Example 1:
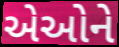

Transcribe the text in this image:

એઓને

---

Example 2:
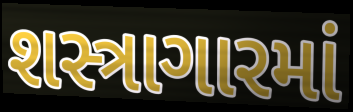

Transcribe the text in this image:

શસ્ત્રાગારમાં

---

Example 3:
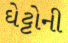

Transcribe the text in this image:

ઘેટ્ટોની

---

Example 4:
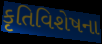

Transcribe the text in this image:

કૃતિવિશેષના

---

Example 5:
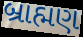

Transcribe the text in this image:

બ્રાહ્મણ